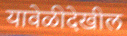
यावेळीदेखील